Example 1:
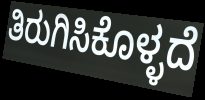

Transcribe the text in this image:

ತಿರುಗಿಸಿಕೊಳ್ಳದೆ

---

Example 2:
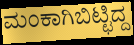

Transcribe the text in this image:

ಮಂಕಾಗಿಬಿಟ್ಟಿದ್ದ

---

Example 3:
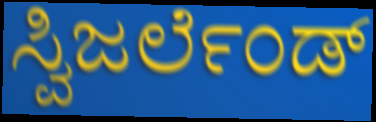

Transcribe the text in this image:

ಸ್ವಿಜರ್ಲೆಂಡ್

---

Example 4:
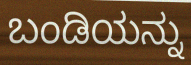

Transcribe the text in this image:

ಬಂಡಿಯನ್ನು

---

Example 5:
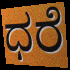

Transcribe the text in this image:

ಧರೆ